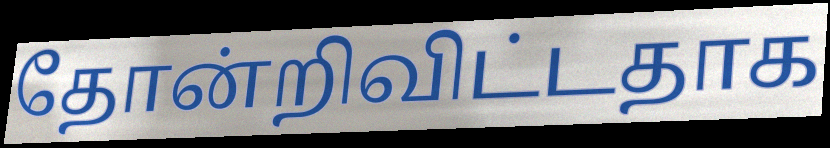
தோன்றிவிட்டதாக